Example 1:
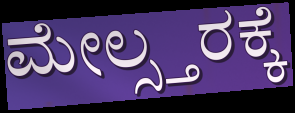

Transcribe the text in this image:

ಮೇಲ್ಸ್ತರಕ್ಕೆ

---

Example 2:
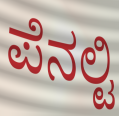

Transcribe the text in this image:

ಪೆನಲ್ಟಿ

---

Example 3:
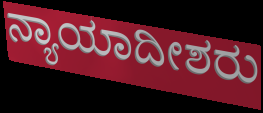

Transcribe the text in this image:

ನ್ಯಾಯಾದೀಶರು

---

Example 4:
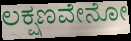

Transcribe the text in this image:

ಲಕ್ಷಣವೇನೋ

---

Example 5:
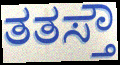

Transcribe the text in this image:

ತತಸ್ತೌ